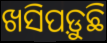
ଖସିପଡ଼ୁଛି